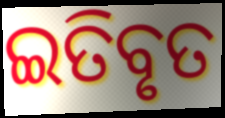
ଇତିବୃତ